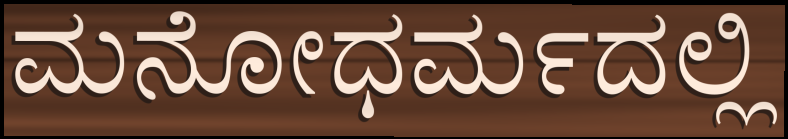
ಮನೋಧರ್ಮದಲ್ಲಿ